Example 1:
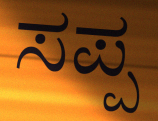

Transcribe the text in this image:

ಸಪ್ಪ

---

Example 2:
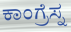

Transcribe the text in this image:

ಕಾಂಗ್ರೆಸ್ನ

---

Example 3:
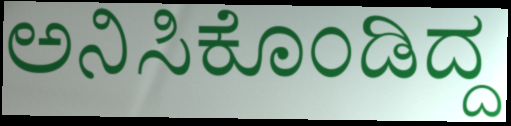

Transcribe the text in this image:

ಅನಿಸಿಕೊಂಡಿದ್ದ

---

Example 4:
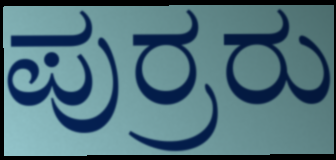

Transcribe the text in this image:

ಪುರ್ರರು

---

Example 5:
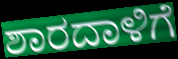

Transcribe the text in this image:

ಶಾರದಾಳಿಗೆ